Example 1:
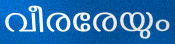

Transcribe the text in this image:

വീരരേയും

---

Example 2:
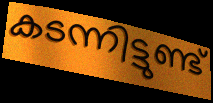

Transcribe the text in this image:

കടന്നിട്ടുണ്ട്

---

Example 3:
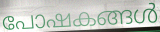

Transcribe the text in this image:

പോഷകങ്ങൾ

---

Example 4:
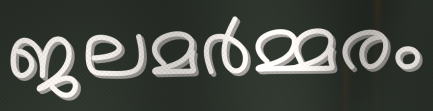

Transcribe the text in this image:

ജലമർമ്മരം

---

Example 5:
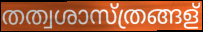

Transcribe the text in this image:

തത്വശാസ്ത്രങ്ങള്